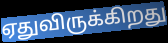
ஏதுவிருக்கிறது